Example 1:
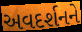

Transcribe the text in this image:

અવદર્શનને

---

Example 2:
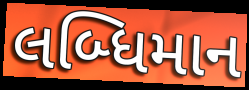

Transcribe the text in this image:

લબ્ધિમાન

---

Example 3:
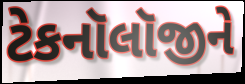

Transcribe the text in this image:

ટેકનૉલૉજીને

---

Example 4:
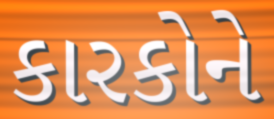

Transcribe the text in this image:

કારકોને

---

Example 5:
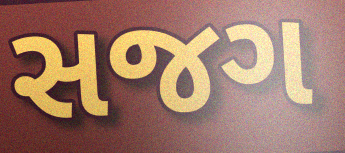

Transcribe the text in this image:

સજગ